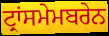
ਟ੍ਰਾਂਸਮੇਮਬਰੇਨ